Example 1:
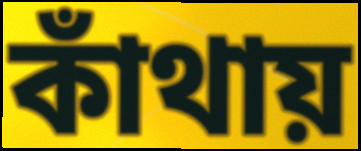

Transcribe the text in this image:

কাঁথায়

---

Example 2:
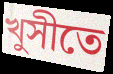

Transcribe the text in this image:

খুসীতে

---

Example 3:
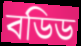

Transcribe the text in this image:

বডিড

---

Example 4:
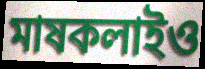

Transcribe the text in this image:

মাষকলাইও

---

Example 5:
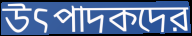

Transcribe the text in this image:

উৎপাদকদের